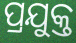
ପ୍ରଯୁକ୍ତ